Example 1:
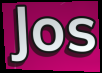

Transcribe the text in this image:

Jos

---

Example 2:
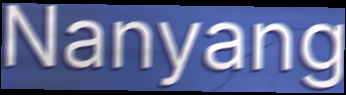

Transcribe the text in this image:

Nanyang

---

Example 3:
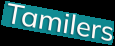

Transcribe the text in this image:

Tamilers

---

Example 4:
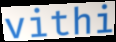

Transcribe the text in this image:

vithi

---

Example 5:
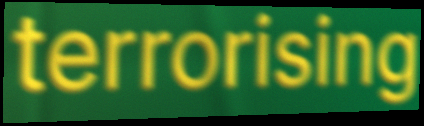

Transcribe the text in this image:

terrorising